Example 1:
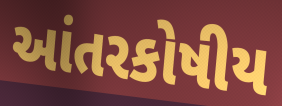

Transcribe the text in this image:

આંતરકોષીય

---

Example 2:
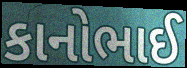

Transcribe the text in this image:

કાનોભાઈ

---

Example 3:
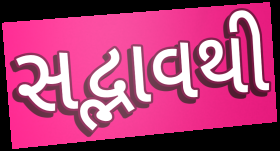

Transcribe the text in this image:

સદ્ભાવથી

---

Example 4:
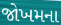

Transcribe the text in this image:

જોખમના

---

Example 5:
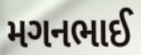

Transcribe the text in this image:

મગનભાઈ